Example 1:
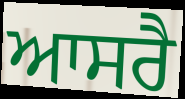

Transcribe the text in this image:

ਆਸਰੈ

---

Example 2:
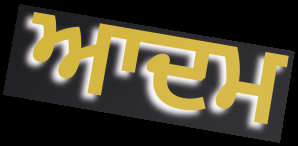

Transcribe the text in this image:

ਆਦਮ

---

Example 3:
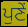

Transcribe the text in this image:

ਪੁਣੇਂ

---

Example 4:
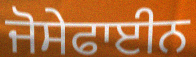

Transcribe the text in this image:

ਜੋਸੇਫਾਈਨ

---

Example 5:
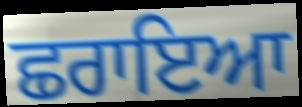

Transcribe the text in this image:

ਛਰਾਇਆ